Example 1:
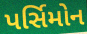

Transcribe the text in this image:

પર્સિમોન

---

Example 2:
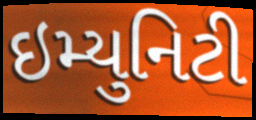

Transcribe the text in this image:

ઇમ્યુનિટી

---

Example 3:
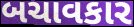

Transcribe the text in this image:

બચાવકાર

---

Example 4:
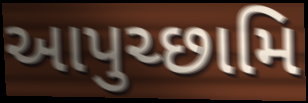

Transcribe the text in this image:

આપુચ્છામિ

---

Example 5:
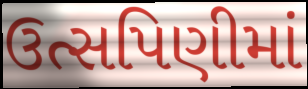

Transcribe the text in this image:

ઉત્સપિણીમાં